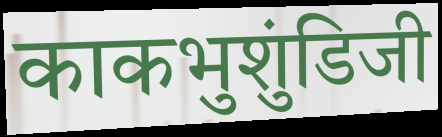
काकभुशुंडिजी